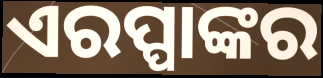
ଏରପ୍ପାଙ୍କର